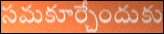
సమకూర్చేందుకు